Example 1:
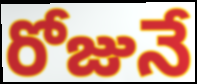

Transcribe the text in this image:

రోజునే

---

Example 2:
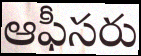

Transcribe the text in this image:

ఆఫీసరు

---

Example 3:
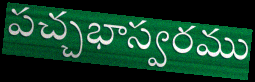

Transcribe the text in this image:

పచ్చభాస్వరము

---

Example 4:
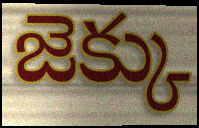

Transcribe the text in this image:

జెక్కు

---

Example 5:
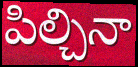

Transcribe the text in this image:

పిల్చినా